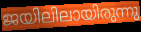
ജയിലിലായിരുന്നു